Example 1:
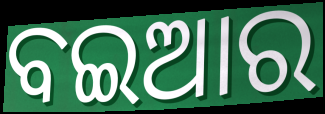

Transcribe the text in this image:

ବଇଆର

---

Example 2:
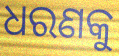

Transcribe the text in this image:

ଧରଣକୁ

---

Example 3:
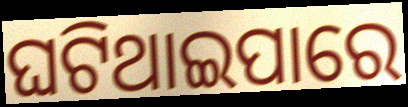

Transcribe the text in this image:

ଘଟିଥାଇପାରେ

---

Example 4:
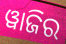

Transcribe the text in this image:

ୱାଜିର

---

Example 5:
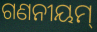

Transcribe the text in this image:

ଗଣନୀୟମ୍